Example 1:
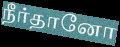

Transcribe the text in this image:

நீர்தானோ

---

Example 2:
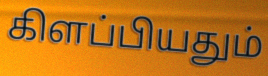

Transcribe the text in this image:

கிளப்பியதும்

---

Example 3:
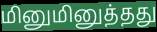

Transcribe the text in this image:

மினுமினுத்தது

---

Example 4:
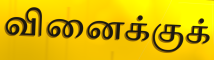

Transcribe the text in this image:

வினைக்குக்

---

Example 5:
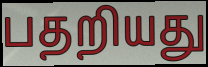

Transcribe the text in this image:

பதறியது